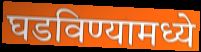
घडविण्यामध्ये